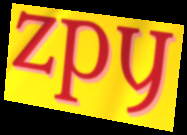
zpy